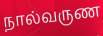
நால்வருண